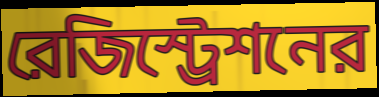
রেজিস্ট্রেশনের